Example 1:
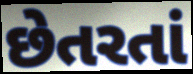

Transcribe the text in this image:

છેતરતાં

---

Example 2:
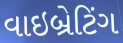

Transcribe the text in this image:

વાઇબ્રેટિંગ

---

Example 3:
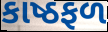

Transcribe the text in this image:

કાષ્ઠફળ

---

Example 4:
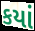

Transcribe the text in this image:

કયાં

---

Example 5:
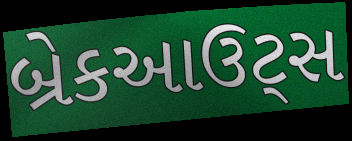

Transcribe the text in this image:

બ્રેકઆઉટ્સ